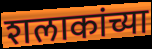
शलाकांच्या